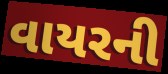
વાયરની